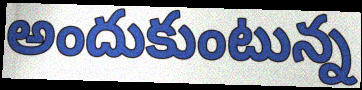
అందుకుంటున్న